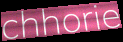
chhorie